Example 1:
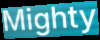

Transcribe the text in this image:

Mighty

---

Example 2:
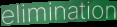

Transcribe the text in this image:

elimination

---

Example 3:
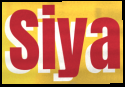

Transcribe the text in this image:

Siya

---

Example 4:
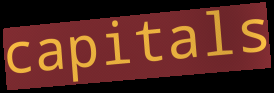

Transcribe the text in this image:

capitals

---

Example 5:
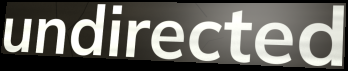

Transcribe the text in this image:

undirected